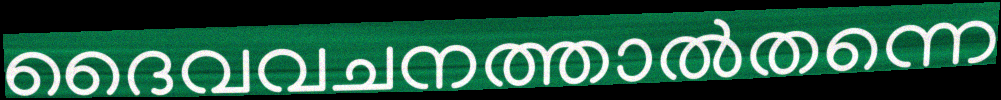
ദൈവവചനത്താൽതന്നെ